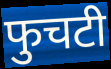
फुचटी